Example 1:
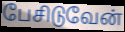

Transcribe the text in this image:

பேசிடுவேன்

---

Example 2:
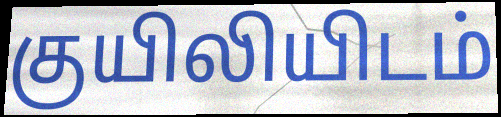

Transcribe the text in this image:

குயிலியிடம்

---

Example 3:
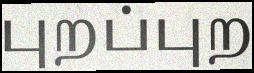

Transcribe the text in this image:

புறப்புற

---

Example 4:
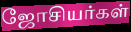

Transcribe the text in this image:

ஜோசியர்கள்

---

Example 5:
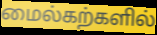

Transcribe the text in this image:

மைல்கற்களில்